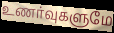
உணர்வுகளுமே